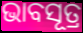
ଭାବସୂତ୍ର